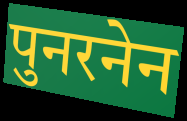
पुनरनेन